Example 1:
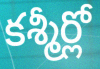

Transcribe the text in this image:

కశ్మీర్లో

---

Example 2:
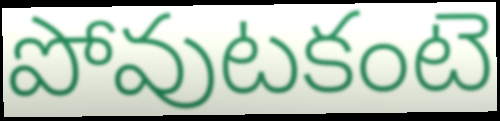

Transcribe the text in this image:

పోవుటకంటె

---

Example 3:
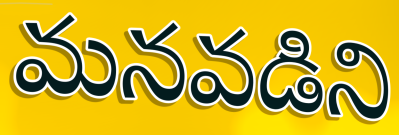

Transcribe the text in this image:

మనవడిని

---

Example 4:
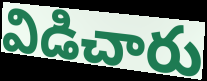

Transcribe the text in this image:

విడిచారు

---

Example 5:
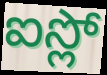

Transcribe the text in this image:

ఐస్లో